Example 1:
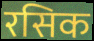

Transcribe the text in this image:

रसिक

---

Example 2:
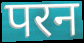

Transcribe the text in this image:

परन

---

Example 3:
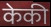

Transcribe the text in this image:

केकी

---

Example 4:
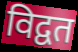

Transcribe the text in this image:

विद्वत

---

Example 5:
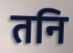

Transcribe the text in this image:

तनि